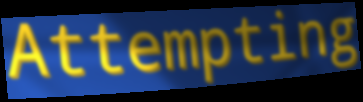
Attempting